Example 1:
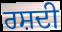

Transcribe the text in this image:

ਰਸ਼ਦੀ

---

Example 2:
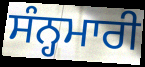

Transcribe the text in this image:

ਸੰਨ੍ਹਮਾਰੀ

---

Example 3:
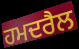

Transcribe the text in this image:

ਹਮਦਰੈਲ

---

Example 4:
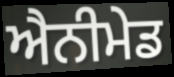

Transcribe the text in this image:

ਐਨੀਮੇਡ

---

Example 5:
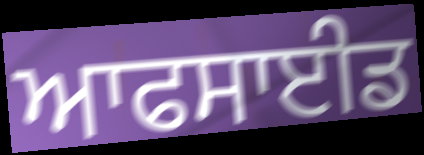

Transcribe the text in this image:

ਆਫਸਾਈਡ